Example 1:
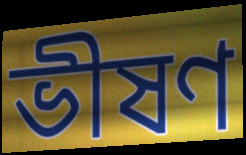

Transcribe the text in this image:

ভীষণ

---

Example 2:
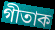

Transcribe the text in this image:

গীতাক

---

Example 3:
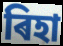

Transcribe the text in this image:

ৰিহা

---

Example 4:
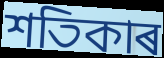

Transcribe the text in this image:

শতিকাৰ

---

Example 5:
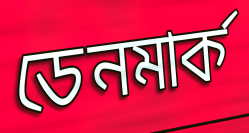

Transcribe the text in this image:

ডেনমাৰ্ক